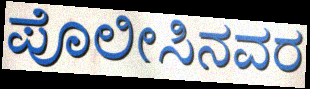
ಪೊಲೀಸಿನವರ